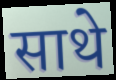
साथे